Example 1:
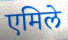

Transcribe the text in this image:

एमिले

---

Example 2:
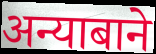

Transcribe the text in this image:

अन्याबाने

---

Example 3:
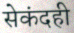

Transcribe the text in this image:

सेकंदही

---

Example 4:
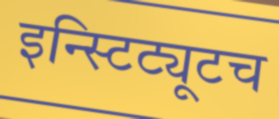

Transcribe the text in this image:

इन्स्टिट्यूटच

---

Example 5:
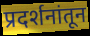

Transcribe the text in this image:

प्रदर्शनांतून